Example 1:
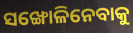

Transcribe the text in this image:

ସଙ୍ଖୋଳିନେବାକୁ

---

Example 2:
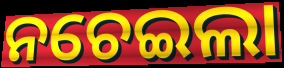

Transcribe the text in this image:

ନଚେଇଲା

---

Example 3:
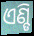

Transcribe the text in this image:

ଏଣ୍ଡି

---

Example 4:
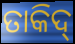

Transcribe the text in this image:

ତାକିଦ୍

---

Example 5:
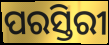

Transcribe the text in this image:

ପରସ୍ତିରୀ